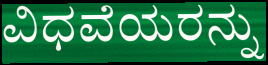
ವಿಧವೆಯರನ್ನು